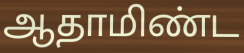
ஆதாமிண்ட